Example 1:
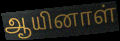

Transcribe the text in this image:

ஆயினாள்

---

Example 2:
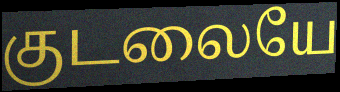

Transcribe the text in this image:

குடலையே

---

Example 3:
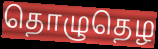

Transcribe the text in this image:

தொழுதெழ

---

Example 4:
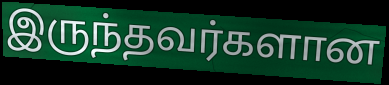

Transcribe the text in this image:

இருந்தவர்களான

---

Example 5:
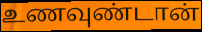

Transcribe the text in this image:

உணவுண்டான்